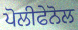
ਪੋਲੀਫੇਨੋਲ